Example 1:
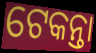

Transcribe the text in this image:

ଟେକନ୍ତା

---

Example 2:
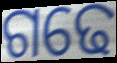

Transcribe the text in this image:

ଗଢେ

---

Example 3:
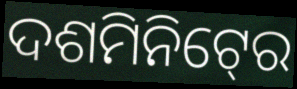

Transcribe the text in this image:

ଦଶମିନିଟ୍‍ରେ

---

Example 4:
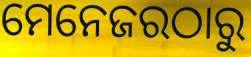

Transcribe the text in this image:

ମେନେଜରଠାରୁ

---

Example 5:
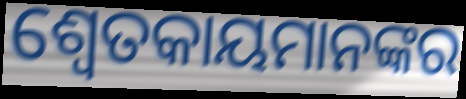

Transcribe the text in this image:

ଶ୍ବେତକାୟମାନଙ୍କର